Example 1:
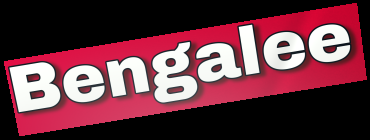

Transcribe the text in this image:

Bengalee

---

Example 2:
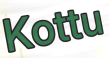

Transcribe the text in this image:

Kottu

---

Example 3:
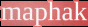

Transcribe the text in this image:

maphak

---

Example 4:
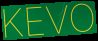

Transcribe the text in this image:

KEVO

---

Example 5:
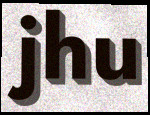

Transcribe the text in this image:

jhu